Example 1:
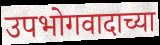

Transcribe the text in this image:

उपभोगवादाच्या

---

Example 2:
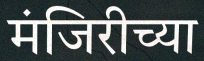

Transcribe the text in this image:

मंजिरीच्या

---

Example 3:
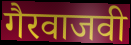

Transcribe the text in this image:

गैरवाजवी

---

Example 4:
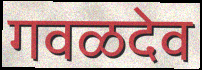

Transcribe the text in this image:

गवळदेव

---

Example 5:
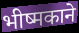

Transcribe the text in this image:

भीष्मकाने